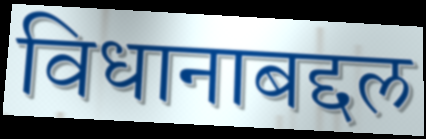
विधानाबद्दल